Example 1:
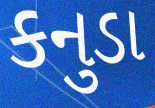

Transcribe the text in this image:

કનુડા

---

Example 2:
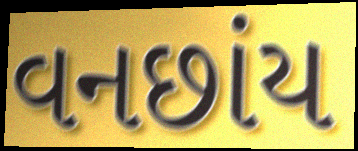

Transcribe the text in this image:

વનછાંય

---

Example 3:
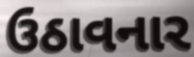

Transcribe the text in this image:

ઉઠાવનાર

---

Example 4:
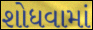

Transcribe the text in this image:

શોધવામાં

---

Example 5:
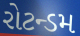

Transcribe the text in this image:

રોટન્ડમ